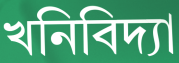
খনিবিদ্যা